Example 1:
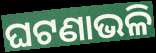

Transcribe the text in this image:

ଘଟଣାଭଳି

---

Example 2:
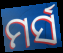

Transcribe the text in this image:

ମର୍ସ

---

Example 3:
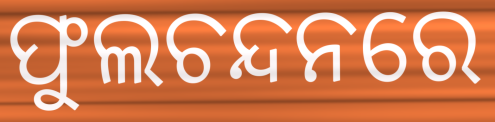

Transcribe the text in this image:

ଫୁଲଚନ୍ଦନରେ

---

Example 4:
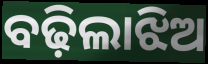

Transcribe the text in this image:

ବଢ଼ିଲାଝିଅ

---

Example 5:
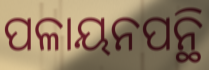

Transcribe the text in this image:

ପଳାୟନପନ୍ଥି